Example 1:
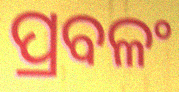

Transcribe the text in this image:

ପ୍ରବଳଂ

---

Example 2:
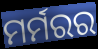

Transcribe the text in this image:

ମର୍ମରର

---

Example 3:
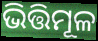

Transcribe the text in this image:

ଭିତ୍ତିମୂଳ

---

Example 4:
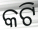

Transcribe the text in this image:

କଟି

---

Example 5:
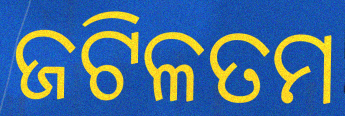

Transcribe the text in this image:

ଜଟିଳତମ